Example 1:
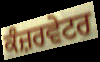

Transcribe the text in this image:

ਕੰਜ਼ਰਵੇਟਰ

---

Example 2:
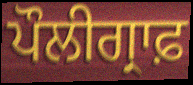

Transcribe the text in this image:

ਪੌਲੀਗ੍ਰਾਫ਼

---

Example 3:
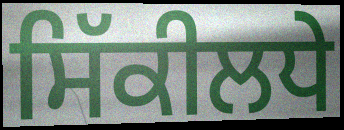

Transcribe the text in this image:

ਸਿੱਕੀਲਧੇ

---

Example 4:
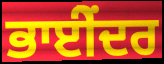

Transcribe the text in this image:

ਭਾਈੇਂਦਰ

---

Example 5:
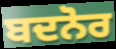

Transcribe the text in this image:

ਬਦਨੋਰ